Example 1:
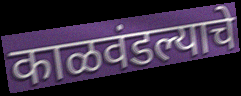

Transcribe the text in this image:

काळवंडल्याचे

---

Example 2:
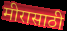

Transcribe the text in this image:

मीरासाठी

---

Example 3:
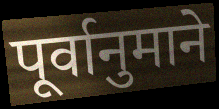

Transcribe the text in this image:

पूर्वानुमाने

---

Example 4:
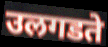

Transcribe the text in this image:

उलगडते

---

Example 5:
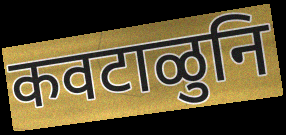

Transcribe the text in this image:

कवटाळुनि